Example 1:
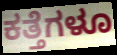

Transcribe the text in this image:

ಕತ್ತೆಗಳೂ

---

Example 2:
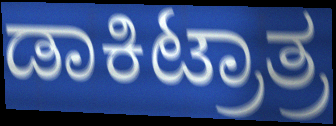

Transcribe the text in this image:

ಡಾಕಿಟ್ರಾತ್ರ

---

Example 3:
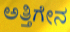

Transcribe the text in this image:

ಅತ್ತಿಗೇನ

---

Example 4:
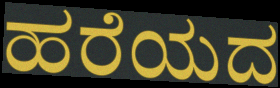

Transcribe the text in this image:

ಹರೆಯದ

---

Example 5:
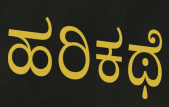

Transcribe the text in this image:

ಹರಿಕಥೆ